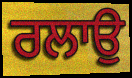
ਰਲਾਉ